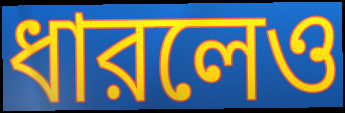
ধারলেও